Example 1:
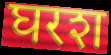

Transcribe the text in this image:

घरश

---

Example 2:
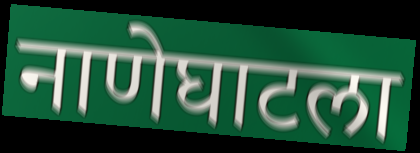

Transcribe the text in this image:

नाणेघाटला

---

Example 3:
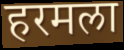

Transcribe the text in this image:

हरमला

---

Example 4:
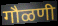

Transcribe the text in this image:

गौळणी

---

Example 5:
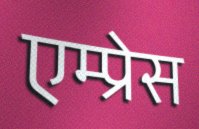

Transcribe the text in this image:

एम्प्रेस